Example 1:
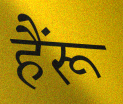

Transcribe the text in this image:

हैंरू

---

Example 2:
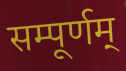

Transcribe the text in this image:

सम्पूर्णम्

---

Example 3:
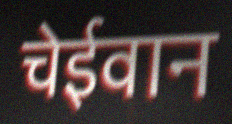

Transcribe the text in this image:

चेईवान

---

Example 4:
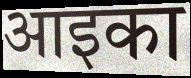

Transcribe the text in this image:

आइका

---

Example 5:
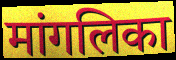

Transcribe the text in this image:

मांगलिका